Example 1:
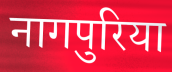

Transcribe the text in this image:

नागपुरिया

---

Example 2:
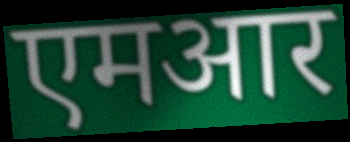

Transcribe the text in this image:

एमआर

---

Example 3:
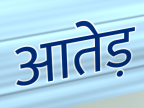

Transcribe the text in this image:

आतेड़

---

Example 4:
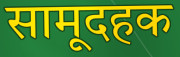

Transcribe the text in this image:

सामूदहक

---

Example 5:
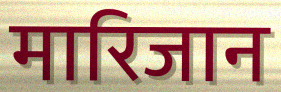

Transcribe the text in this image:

मारिजान